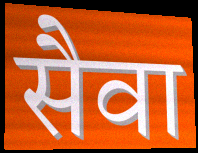
सैवा